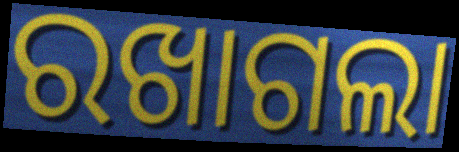
ରଖାଗଲା